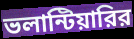
ভলান্টিয়ারির